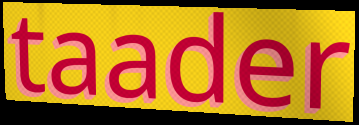
taader